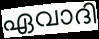
ഏവാദി